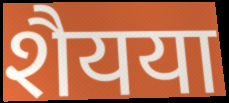
शैयया